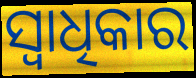
ସ୍ବାଧିକାର